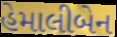
હેમાલીબેન